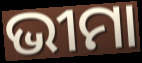
ଭୀମା